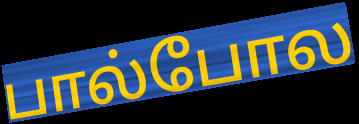
பால்போல